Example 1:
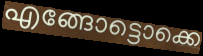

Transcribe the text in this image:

എങ്ങോട്ടൊക്കെ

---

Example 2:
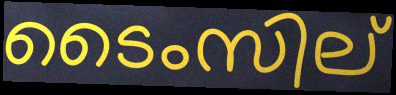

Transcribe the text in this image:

ടൈംസില്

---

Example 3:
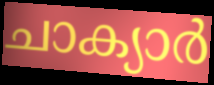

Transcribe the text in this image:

ചാക്യാർ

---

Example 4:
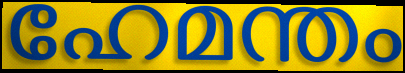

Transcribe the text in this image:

ഹേമന്തം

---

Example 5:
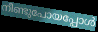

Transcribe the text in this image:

നീണ്ടുപോയപ്പോൾ